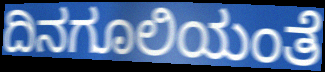
ದಿನಗೂಲಿಯಂತೆ